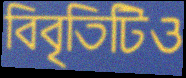
বিবৃতিটিও